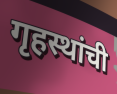
गृहस्थांची